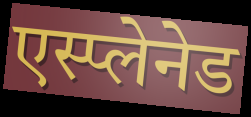
एस्प्लेनेड